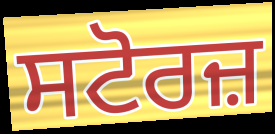
ਸਟੋਰਜ਼